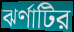
ঝর্ণাটির